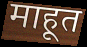
माहूत